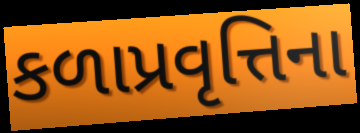
કળાપ્રવૃત્તિના